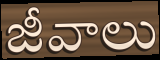
జీవాలు